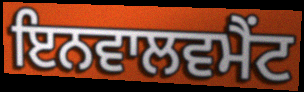
ਇਨਵਾਲਵਮੈਂਟ